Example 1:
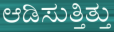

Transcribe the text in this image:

ಆಡಿಸುತ್ತಿತ್ತು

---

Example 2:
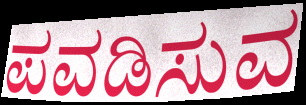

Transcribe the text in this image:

ಪವಡಿಸುವ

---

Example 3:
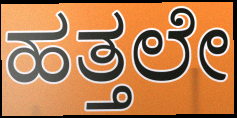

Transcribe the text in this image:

ಹತ್ತಲೇ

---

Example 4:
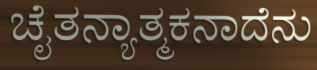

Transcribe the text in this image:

ಚೈತನ್ಯಾತ್ಮಕನಾದೆನು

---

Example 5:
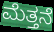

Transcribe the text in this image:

ಮೆತ್ತನೆ